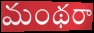
మంథరా